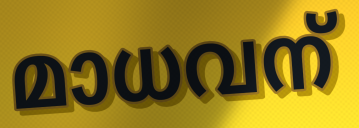
മാധവന്